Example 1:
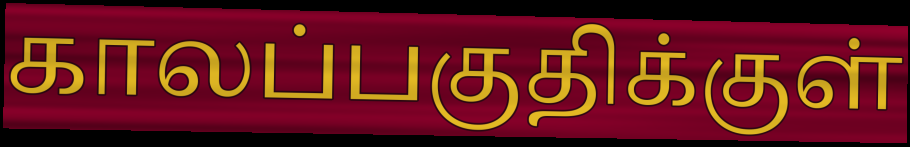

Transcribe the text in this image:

காலப்பகுதிக்குள்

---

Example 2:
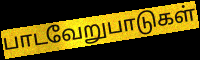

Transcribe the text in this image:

பாடவேறுபாடுகள்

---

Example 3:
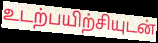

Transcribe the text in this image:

உடற்பயிற்சியுடன்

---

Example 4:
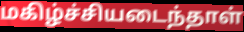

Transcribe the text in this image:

மகிழ்ச்சியடைந்தாள்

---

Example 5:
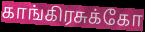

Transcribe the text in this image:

காங்கிரசுக்கோ